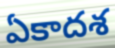
ఏకాదశ